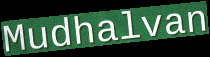
Mudhalvan